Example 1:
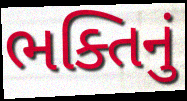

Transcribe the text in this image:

ભક્તિનું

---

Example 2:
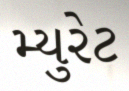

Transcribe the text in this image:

મ્યુરેટ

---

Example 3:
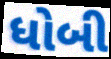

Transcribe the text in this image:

ધોબી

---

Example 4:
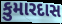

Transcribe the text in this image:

કુમારદાસ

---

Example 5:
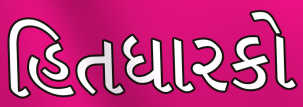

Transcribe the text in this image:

હિતધારકો